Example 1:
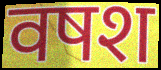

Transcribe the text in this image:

वषश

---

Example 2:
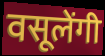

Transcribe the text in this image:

वसूलेंगी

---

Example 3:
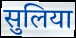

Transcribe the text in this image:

सुलिया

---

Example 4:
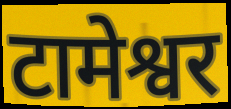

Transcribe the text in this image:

टामेश्वर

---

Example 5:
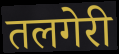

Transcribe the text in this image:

तलगेरी